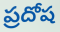
ప్రదోష